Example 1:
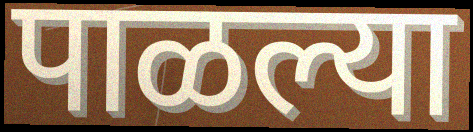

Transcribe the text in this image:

पाळल्या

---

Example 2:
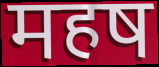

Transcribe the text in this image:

महष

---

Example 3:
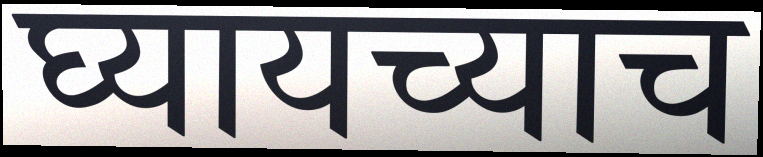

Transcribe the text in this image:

घ्यायच्याच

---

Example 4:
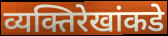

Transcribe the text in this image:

व्यक्तिरेखांकडे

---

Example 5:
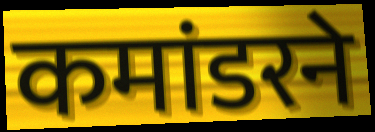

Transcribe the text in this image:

कमांडरने